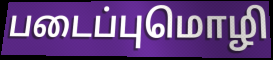
படைப்புமொழி